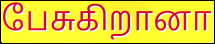
பேசுகிறானா